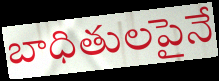
బాధితులపైనే